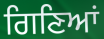
ਗਿਣਿਆਂ